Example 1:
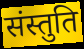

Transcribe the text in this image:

संस्तुति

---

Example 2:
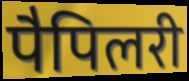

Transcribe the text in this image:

पैपिलरी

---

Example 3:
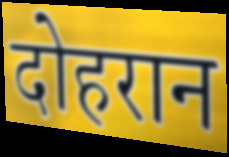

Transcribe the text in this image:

दोहरान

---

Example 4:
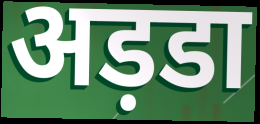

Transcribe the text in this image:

अड़डा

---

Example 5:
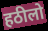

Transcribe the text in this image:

हठीलो